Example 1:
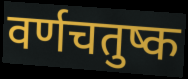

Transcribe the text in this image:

वर्णचतुष्क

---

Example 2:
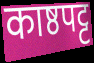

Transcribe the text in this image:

काष्ठपट्ट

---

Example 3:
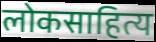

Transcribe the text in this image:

लोकसाहित्य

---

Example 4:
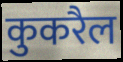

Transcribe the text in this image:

कुकरैल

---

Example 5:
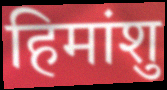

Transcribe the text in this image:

हिमांशु